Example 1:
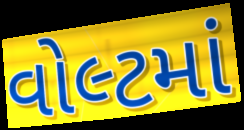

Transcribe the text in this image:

વોલ્ટમાં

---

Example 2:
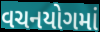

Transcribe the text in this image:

વચનયોગમાં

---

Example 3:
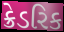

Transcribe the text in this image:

ક્રેડરિક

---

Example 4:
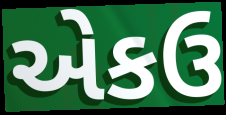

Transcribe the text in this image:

એકઉ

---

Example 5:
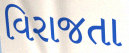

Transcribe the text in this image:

વિરાજતા